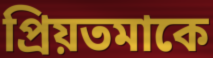
প্রিয়তমাকে